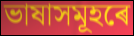
ভাষাসমূহৰে